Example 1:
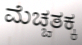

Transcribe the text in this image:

ಮೆಚ್ಚತಕ್ಕ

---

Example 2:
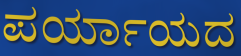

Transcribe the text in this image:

ಪರ್ಯಾಯದ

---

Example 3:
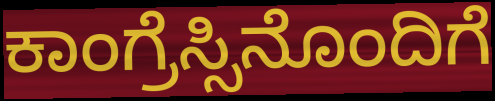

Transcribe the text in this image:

ಕಾಂಗ್ರೆಸ್ಸಿನೊಂದಿಗೆ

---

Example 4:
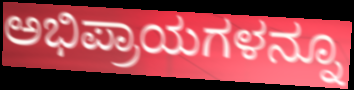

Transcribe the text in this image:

ಅಭಿಪ್ರಾಯಗಳನ್ನೂ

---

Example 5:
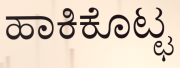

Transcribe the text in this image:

ಹಾಕಿಕೊಟ್ಟ